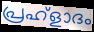
പ്രഹ്ളാദം